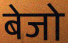
बेजो